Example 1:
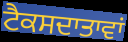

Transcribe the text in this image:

ਟੈਕਸਦਾਤਾਵਾਂ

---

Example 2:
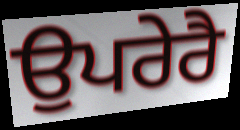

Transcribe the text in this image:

ਉਪਰੇਰੈ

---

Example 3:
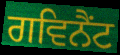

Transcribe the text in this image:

ਗਵਿਨੈਂਟ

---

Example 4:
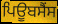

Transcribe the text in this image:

ਪਿਊਬਸੈਂਸ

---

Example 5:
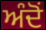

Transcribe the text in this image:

ਅੰਦੋਂ